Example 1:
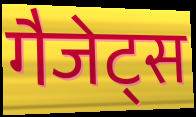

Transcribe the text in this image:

गैजेट्स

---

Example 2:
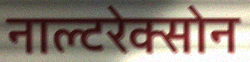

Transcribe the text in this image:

नाल्टरेक्सोन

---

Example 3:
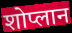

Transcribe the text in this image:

शोप्लान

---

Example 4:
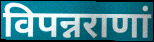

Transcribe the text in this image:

विपन्नराणां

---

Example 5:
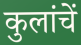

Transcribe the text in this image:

कुलांचें